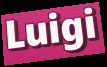
Luigi